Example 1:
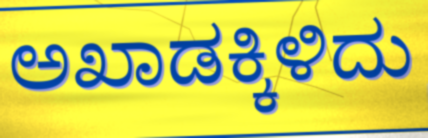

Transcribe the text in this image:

ಅಖಾಡಕ್ಕಿಳಿದು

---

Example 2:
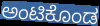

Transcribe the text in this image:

ಅಂಟಿಕೊಂಡ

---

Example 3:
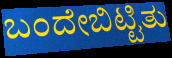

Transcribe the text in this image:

ಬಂದೇಬಿಟ್ಟಿತು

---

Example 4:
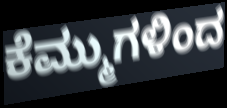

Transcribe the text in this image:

ಕೆಮ್ಮುಗಳಿಂದ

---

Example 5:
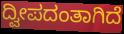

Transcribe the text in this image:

ದ್ವೀಪದಂತಾಗಿದೆ